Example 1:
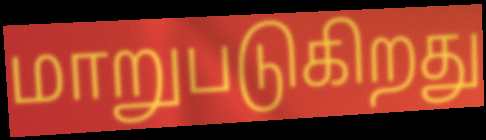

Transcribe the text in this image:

மாறுபடுகிறது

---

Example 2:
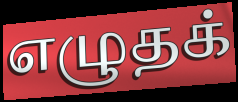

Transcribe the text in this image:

எழுதக்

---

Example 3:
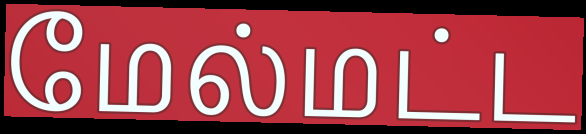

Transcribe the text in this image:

மேல்மட்ட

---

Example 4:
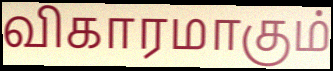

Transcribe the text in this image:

விகாரமாகும்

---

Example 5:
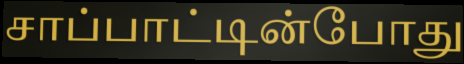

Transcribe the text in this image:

சாப்பாட்டின்போது